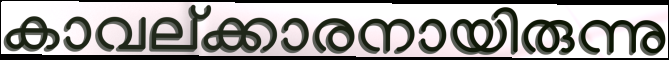
കാവല്ക്കാരനായിരുന്നു